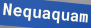
Nequaquam